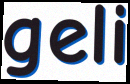
geli